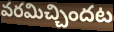
వరమిచ్చిందట